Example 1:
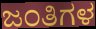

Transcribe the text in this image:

ಜಂತಿಗಳ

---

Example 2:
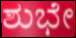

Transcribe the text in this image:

ಶುಭೇ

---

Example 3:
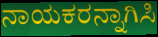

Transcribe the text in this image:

ನಾಯಕರನ್ನಾಗಿಸಿ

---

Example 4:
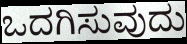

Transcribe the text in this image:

ಒದಗಿಸುವುದು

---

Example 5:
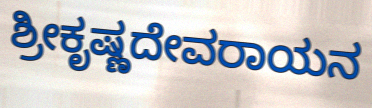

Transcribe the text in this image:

ಶ್ರೀಕೃಷ್ಣದೇವರಾಯನ